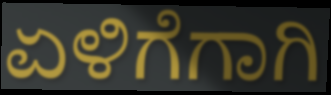
ಏಳಿಗೆಗಾಗಿ